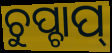
ଚୁପ୍ଚାପ୍